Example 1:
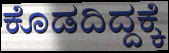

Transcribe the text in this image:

ಕೊಡದಿದ್ದಕ್ಕೆ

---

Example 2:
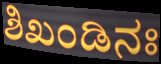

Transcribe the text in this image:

ಶಿಖಂಡಿನಃ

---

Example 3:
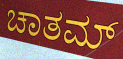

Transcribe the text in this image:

ಚಾತಮ್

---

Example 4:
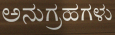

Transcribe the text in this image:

ಅನುಗ್ರಹಗಳು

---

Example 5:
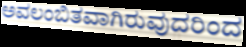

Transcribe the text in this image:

ಅವಲಂಬಿತವಾಗಿರುವುದರಿಂದ